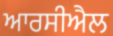
ਆਰਸੀਐਲ